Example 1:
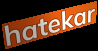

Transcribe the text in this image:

hatekar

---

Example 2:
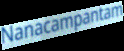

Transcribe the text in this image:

Nanacampantam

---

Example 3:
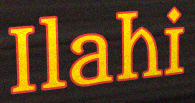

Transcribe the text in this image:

Ilahi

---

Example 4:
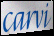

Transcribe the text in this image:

carvi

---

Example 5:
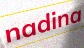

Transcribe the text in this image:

nadina